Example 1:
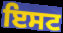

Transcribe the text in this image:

ਇਸਟ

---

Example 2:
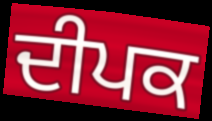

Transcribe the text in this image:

ਦੀਪਕ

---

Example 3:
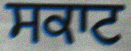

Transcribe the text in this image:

ਸਕਾਟ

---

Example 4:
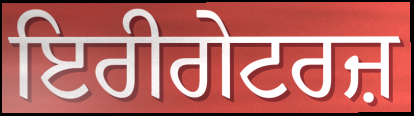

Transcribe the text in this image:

ਇਰੀਗੇਟਰਜ਼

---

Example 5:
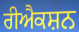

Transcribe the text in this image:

ਰੀਐਕਸ਼ਨ